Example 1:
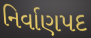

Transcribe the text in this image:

નિર્વાણપદ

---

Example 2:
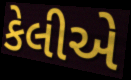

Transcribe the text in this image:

કેલીએ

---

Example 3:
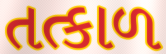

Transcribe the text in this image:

તત્કાળ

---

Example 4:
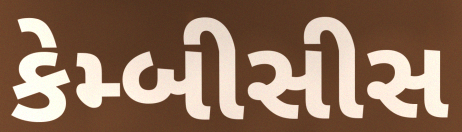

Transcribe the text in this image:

કેમ્બીસીસ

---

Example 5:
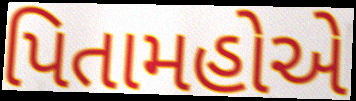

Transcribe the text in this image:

પિતામહોએ